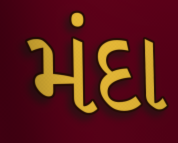
મંદા